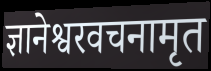
ज्ञानेश्वरवचनामृत